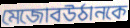
মেজোবউঠানকে